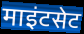
माइंटसेट